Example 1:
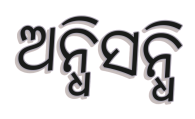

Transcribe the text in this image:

ଅନ୍ଧିସନ୍ଧି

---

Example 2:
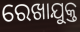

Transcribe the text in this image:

ରେଖାଯୁକ୍ତ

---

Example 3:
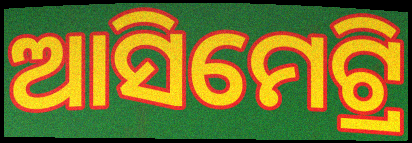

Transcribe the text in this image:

ଆସିମେଟ୍ରି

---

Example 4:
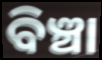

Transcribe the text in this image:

ବିଞ୍ଚା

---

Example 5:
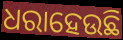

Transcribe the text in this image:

ଧରାହେଉଛି